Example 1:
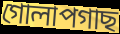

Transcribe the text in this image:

গোলাপগাছ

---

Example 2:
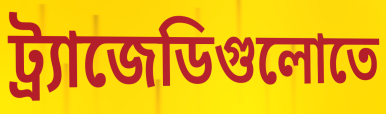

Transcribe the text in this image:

ট্র্যাজেডিগুলোতে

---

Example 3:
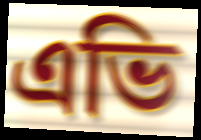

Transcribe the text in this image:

এভি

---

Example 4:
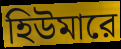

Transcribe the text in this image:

হিউমারে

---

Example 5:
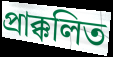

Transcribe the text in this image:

প্রাক্কলিত